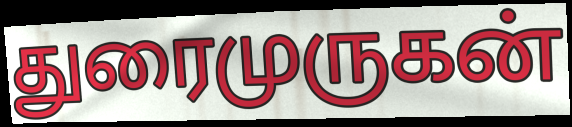
துரைமுருகன்